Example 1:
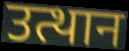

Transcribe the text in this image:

उत्थान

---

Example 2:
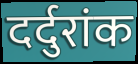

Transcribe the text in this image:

दर्दुरांक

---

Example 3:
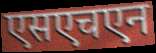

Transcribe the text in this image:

एसएचएन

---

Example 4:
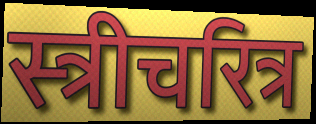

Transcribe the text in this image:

स्त्रीचरित्र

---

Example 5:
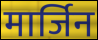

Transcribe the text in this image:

मार्जिन